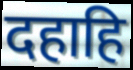
दहाहि